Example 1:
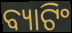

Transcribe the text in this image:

ବ୍ୟାଟିଂ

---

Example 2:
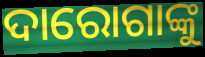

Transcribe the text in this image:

ଦାରୋଗାଙ୍କୁ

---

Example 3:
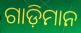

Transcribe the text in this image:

ଗାଡ଼ିମାନ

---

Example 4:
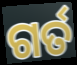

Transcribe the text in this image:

ଗର୍ତ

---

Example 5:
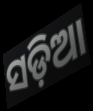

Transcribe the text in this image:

ସଡ଼ିଆ